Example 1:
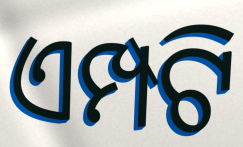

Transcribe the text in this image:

ଏମ୍ପଟି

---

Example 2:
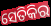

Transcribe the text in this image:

ସେତିକିର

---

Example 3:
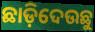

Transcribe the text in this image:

ଛାଡ଼ିଦେଉଛୁ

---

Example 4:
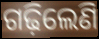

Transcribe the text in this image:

ଗଢ଼ିଲେଣି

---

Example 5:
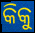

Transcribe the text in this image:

କିକୁ